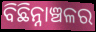
ବିଛିନ୍ନାଞ୍ଚଳର